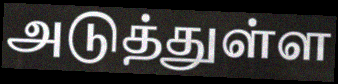
அடுத்துள்ள